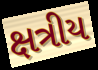
ક્ષત્રીય